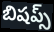
బిషప్స్